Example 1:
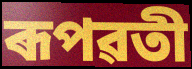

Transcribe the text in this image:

ৰূপৱতী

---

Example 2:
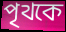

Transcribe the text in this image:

পৃথকে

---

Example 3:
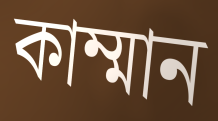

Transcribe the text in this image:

কাম্মান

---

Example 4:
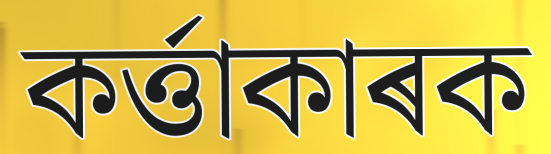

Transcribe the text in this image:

কৰ্ত্তাকাৰক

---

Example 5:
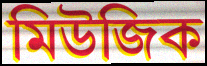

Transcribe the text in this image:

মিউজিক